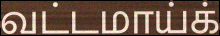
வட்டமாய்க்